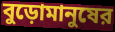
বুড়োমানুষের